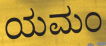
ಯಮಂ